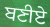
ਬਣੀਏ